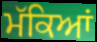
ਮੱਕਿਆਂ